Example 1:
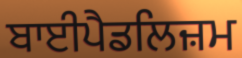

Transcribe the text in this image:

ਬਾਈਪੈਡਲਿਜ਼ਮ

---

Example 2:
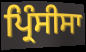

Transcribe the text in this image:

ਪ੍ਰਿੰਸੀਸਾ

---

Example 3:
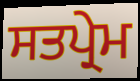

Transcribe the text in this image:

ਸਤਪ੍ਰੇਮ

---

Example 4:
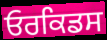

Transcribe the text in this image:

ਓਰਕਿਡਸ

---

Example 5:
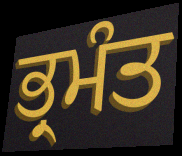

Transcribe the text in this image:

ਭ੍ਰਮੰਤ